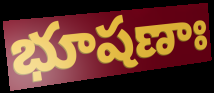
భూషణాః